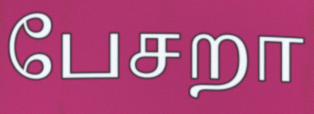
பேசறா